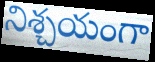
నిశ్చయంగా